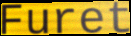
Furet